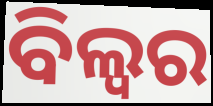
ବିଲ୍ୱର